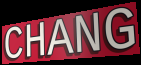
CHANG